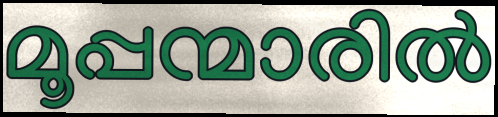
മൂപ്പന്മാരിൽ